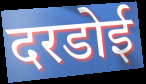
दरडोई